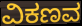
ವಿಕಣವ